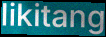
likitang